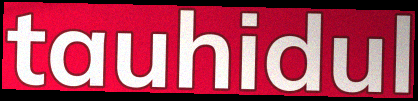
tauhidul